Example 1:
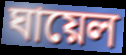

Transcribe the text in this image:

ঘায়েল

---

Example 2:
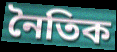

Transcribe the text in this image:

নৈতিক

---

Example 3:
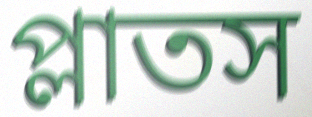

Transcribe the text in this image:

প্লাতস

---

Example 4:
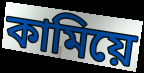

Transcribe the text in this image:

কামিয়ে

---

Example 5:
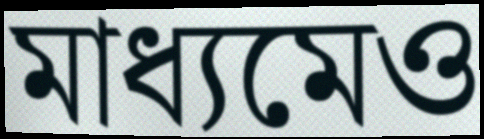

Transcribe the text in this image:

মাধ্যমেও